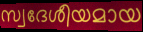
സ്വദേശീയമായ